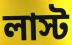
লাস্ট